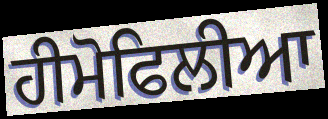
ਹੀਮੋਫਿਲੀਆ